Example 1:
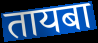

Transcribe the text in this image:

तायबा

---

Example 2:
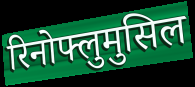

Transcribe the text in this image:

रिनोफ्लुमुसिल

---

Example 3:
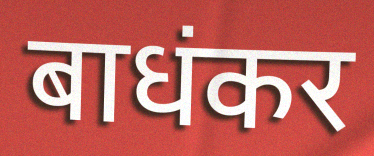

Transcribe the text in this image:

बाधंकर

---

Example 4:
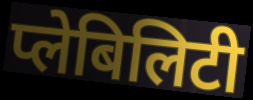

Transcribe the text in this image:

प्लेबिलिटी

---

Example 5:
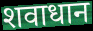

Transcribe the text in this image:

शवाधान